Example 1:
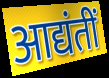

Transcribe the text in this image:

आद्यंतीं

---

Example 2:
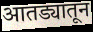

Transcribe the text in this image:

आतड्यातून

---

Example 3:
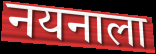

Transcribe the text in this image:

नयनाला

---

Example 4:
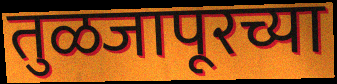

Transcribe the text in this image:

तुळजापूरच्या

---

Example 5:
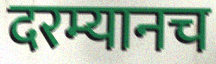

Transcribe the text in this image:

दरम्यानच